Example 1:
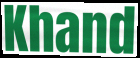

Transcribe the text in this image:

Khand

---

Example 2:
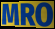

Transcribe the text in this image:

MRO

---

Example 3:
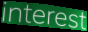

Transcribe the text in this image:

interest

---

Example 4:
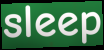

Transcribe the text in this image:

sleep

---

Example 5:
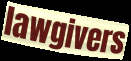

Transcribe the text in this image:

lawgivers